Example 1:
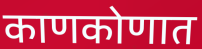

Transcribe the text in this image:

काणकोणात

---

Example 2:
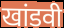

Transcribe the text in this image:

खांडवी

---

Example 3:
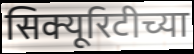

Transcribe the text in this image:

सिक्यूरिटीच्या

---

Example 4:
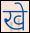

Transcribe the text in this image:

खे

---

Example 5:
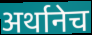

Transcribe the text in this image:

अर्थानेच